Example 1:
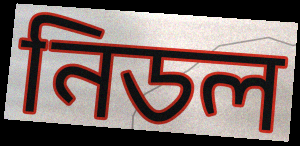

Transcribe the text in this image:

নিডল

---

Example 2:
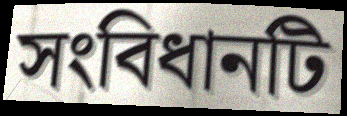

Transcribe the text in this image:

সংবিধানটি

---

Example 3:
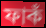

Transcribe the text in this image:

ফাকঁ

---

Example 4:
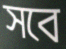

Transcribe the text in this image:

সবে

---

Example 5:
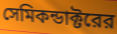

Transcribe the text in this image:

সেমিকন্ডাক্টরের